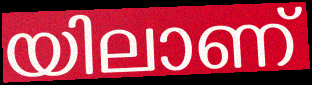
യിലാണ്